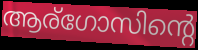
ആര്ഗോസിന്റെ